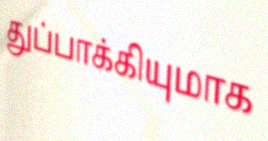
துப்பாக்கியுமாக